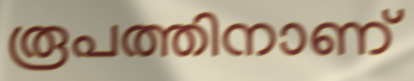
രൂപത്തിനാണ്